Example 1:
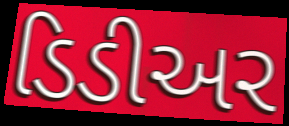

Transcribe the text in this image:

ડિડીઅર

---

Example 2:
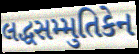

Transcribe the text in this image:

લદ્ધસમ્મુતિકેન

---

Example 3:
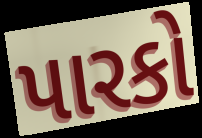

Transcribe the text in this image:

પારકો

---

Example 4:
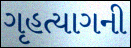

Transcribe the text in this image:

ગૃહત્યાગની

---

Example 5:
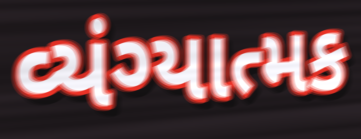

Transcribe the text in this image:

વ્યંગ્યાત્મક